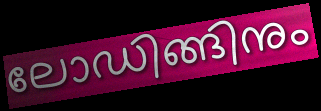
ലോഡിങ്ങിനും